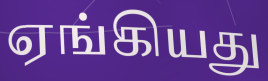
ஏங்கியது